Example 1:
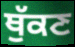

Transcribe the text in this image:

ਥੁੱਕਣ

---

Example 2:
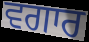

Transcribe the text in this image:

ਵਗਾਰ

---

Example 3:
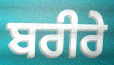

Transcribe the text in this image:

ਬਰੀਰੇ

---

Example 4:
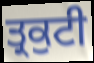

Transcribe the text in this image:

ਤ੍ਰਕੁਟੀ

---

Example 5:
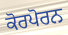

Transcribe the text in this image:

ਕੋਰਪੋਰਨ